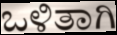
ಒಳಿತಾಗಿ